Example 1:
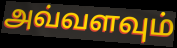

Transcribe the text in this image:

அவ்வளவும்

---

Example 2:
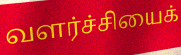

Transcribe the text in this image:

வளர்ச்சியைக்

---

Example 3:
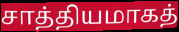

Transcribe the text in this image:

சாத்தியமாகத்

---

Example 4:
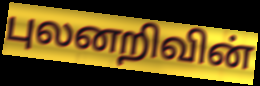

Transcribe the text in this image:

புலனறிவின்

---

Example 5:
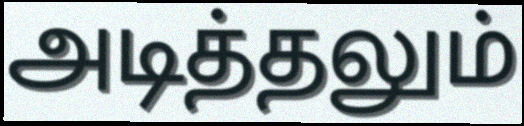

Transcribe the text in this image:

அடித்தலும்